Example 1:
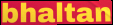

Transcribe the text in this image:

bhaltan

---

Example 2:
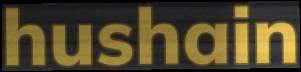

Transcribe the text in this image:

hushain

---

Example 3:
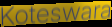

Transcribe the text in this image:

Koteswara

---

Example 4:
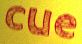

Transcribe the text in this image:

cue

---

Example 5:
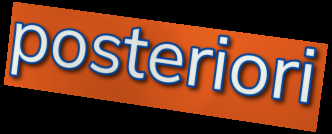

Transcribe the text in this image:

posteriori